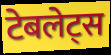
टेबलेट्स